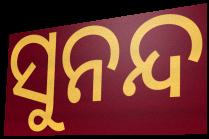
ସୁନନ୍ଦ